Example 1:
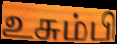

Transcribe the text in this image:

உசும்பி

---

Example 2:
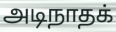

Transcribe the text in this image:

அடிநாதக்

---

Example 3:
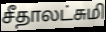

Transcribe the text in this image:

சீதாலட்சுமி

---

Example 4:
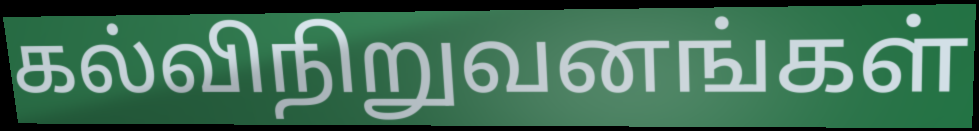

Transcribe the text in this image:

கல்விநிறுவனங்கள்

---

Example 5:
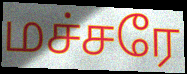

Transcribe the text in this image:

மச்சரே